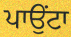
ਪਾਉਂਟਾ